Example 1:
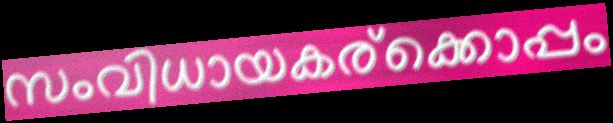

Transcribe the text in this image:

സംവിധായകര്ക്കൊപ്പം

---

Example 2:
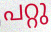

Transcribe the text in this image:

പറ്റു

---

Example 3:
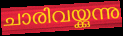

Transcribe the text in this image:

ചാരിവയ്ക്കുന്നു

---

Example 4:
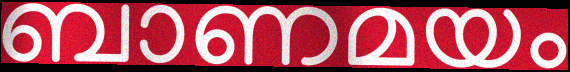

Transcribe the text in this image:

ബാണമയം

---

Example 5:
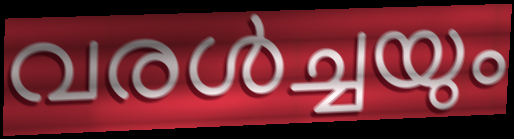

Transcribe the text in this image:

വരൾച്ചയും